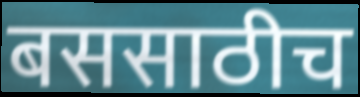
बससाठीच